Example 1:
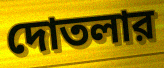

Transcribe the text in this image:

দোতলার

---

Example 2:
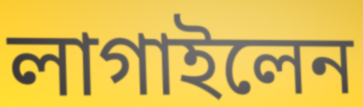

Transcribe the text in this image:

লাগাইলেন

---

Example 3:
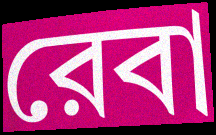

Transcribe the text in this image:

রেবা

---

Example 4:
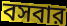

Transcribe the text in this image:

বসবার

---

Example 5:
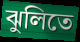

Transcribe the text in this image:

ঝুলিতে